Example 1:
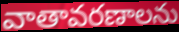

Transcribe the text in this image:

వాతావరణాలను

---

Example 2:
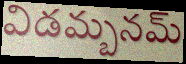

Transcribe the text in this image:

విడమ్బనమ్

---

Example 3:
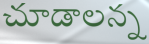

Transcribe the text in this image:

చూడాలన్న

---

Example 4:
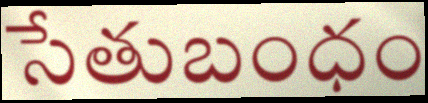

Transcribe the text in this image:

సేతుబంధం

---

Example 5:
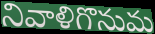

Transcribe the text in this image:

నివాళిగొనుమ